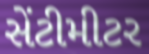
સેંટીમીટર